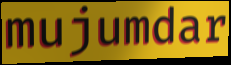
mujumdar